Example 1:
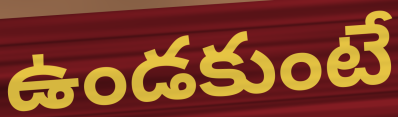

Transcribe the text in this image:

ఉండకుంటే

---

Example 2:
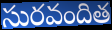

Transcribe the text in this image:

సురవందిత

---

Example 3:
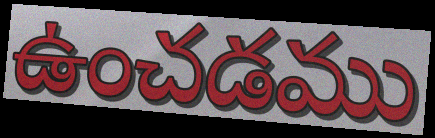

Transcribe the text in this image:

ఉంచడము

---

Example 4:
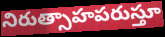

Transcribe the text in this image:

నిరుత్సాహపరుస్తూ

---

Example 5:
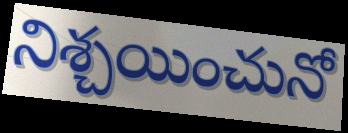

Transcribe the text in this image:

నిశ్చయించునో